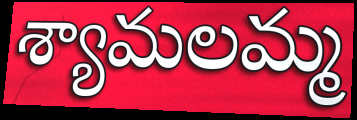
శ్యామలమ్మ